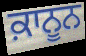
ਕ਼ਾਨੂਨ